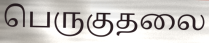
பெருகுதலை